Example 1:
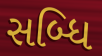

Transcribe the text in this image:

સબ્ધિ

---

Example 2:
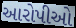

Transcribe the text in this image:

આરોપીઓ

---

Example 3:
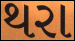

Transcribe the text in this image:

થરા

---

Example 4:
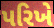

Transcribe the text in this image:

પરિખે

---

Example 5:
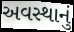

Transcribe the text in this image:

અવસ્થાનું